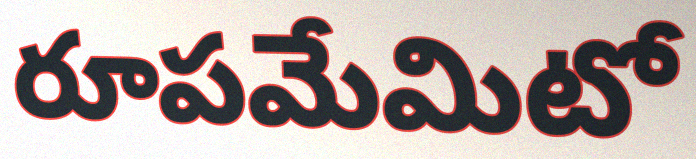
రూపమేమిటో